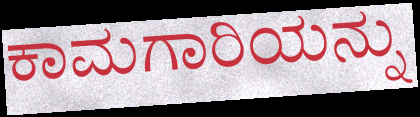
ಕಾಮಗಾರಿಯನ್ನು